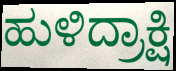
ಹುಳಿದ್ರಾಕ್ಷಿ